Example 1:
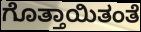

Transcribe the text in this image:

ಗೊತ್ತಾಯಿತಂತೆ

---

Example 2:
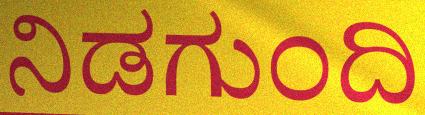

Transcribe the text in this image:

ನಿಡಗುಂದಿ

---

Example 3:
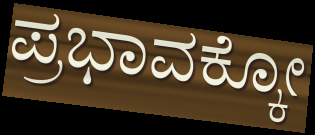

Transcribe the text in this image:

ಪ್ರಭಾವಕ್ಕೋ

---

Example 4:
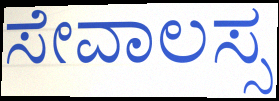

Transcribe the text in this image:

ಸೇವಾಲಸ್ಸ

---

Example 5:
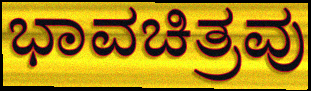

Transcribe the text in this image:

ಭಾವಚಿತ್ರವು